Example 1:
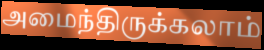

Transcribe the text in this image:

அமைந்திருக்கலாம்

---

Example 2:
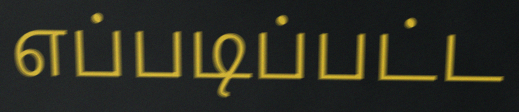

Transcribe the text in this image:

எப்படிப்பட்ட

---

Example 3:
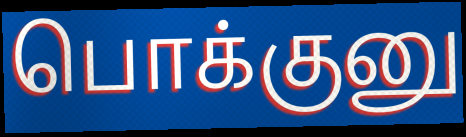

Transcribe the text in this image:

பொக்குனு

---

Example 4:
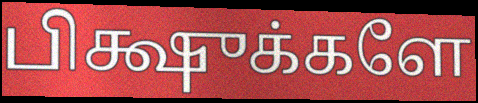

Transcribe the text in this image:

பிக்ஷுக்களே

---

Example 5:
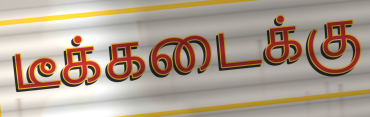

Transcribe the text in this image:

டீக்கடைக்கு